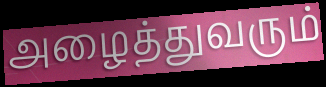
அழைத்துவரும்